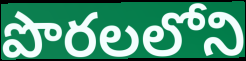
పొరలలోని